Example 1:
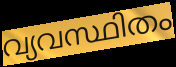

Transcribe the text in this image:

വ്യവസ്ഥിതം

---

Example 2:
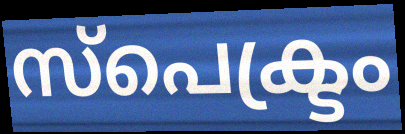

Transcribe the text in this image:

സ്പെക്ട്രം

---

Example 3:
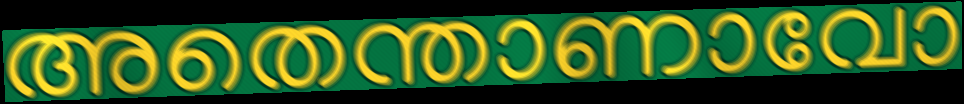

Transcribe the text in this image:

അതെന്താണാവോ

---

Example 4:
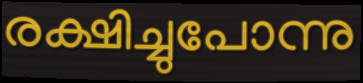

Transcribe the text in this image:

രക്ഷിച്ചുപോന്നു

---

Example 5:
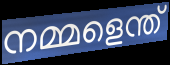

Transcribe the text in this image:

നമ്മളെന്ത്